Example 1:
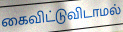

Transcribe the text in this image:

கைவிட்டுவிடாமல்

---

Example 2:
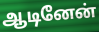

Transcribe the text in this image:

ஆடினேன்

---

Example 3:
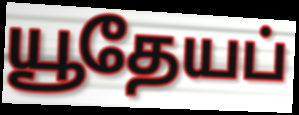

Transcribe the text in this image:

யூதேயப்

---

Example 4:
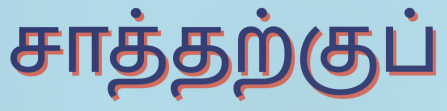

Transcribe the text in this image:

சாத்தற்குப்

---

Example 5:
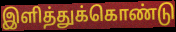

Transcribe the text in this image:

இளித்துக்கொண்டு